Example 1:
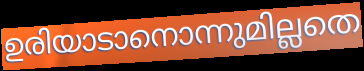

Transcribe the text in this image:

ഉരിയാടാനൊന്നുമില്ലതെ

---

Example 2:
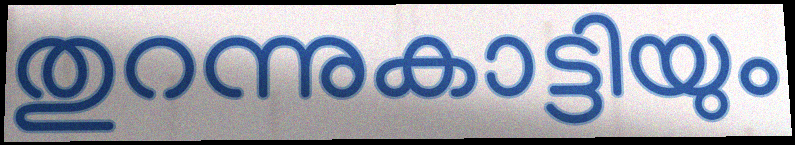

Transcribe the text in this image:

തുറന്നുകാട്ടിയും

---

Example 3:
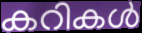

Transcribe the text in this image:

കറികൾ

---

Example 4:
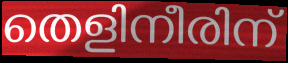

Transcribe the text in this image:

തെളിനീരിന്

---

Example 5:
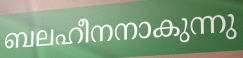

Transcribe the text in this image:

ബലഹീനനാകുന്നു